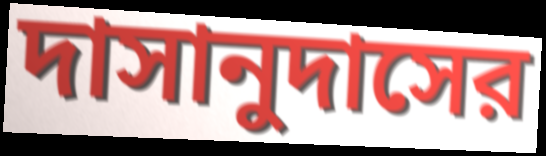
দাসানুদাসের